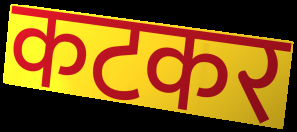
कटकर